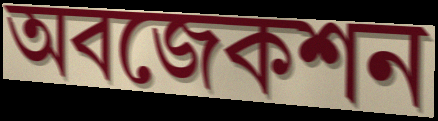
অবজেকশন